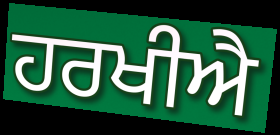
ਹਰਖੀਐ